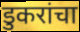
डुकरांचा